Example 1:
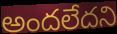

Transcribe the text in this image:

అందలేదని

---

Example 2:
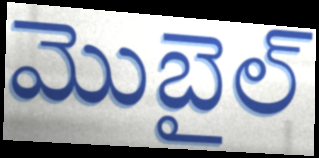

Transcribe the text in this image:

మొబైల్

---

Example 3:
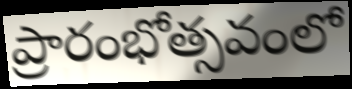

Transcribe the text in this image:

ప్రారంభోత్సవంలో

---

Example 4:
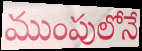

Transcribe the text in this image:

ముంపులోనే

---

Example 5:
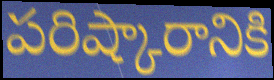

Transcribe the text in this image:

పరిష్కారానికి